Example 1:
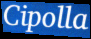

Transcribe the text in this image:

Cipolla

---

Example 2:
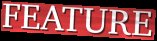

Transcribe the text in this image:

FEATURE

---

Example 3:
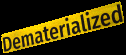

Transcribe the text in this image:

Dematerialized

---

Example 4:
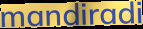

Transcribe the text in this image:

mandiradi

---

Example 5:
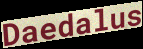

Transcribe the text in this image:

Daedalus